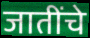
जातींचे